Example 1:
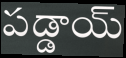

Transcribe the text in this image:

పడ్డాయ్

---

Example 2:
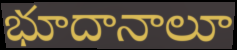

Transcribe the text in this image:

భూదానాలూ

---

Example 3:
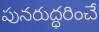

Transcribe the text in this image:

పునరుద్ధరించే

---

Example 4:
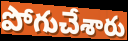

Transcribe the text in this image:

పోగుచేశారు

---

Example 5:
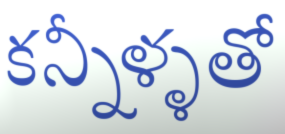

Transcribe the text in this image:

కన్నీళ్ళతో